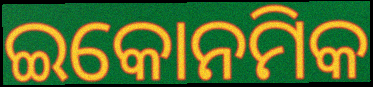
ଇକୋନମିକ